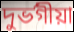
দুৰ্ভগীয়া